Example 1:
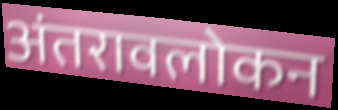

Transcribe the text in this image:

अंतरावलोकन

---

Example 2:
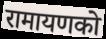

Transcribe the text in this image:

रामायणको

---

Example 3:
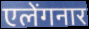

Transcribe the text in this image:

एलेंगनार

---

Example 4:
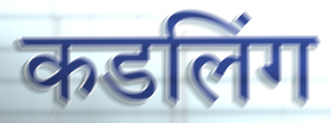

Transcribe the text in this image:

कडलिंग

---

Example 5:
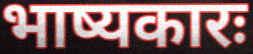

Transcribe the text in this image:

भाष्यकारः